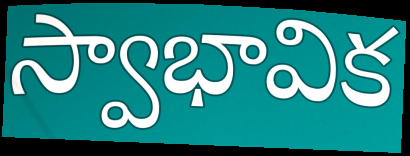
స్వాభావిక